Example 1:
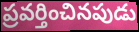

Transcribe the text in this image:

ప్రవర్తించినపుడు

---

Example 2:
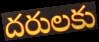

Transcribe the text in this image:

దరులకు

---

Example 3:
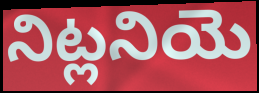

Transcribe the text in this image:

నిట్లనియె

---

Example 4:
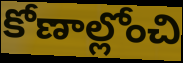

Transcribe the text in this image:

కోణాల్లోంచి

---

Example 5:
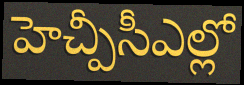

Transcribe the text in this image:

హెచ్పీసీఎల్లో